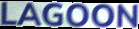
LAGOON